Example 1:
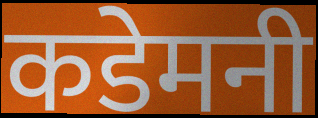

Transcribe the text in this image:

कडेमनी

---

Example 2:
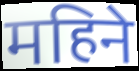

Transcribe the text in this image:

महिने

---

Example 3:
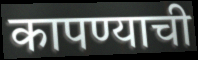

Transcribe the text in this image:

कापण्याची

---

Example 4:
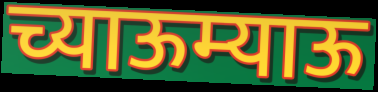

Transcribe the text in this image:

च्याऊम्याऊ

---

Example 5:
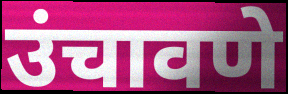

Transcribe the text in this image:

उंचावणे